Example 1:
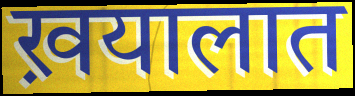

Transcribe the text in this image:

ख़यालात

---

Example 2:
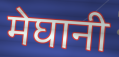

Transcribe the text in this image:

मेघानी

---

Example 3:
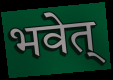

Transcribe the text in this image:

भवेत्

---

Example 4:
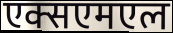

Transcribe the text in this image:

एक्सएमएल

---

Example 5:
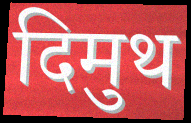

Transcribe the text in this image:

दिमुथ